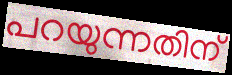
പറയുന്നതിന്